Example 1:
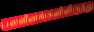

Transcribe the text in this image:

பலவீனங்களிலிருந்து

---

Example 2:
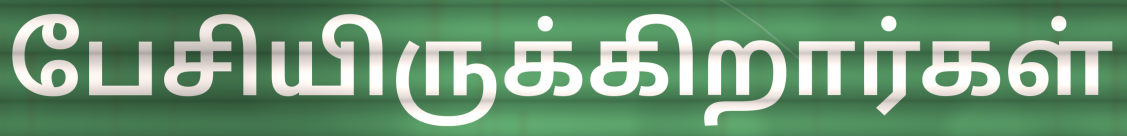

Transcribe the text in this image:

பேசியிருக்கிறார்கள்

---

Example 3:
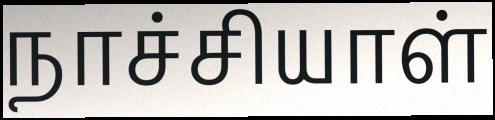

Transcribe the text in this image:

நாச்சியாள்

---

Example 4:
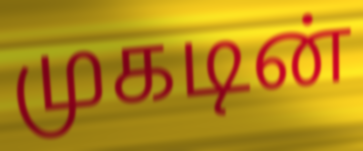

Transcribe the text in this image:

முகடின்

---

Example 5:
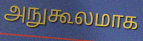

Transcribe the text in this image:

அநுகூலமாக